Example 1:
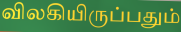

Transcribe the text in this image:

விலகியிருப்பதும்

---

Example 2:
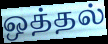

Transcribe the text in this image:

ஒத்தல்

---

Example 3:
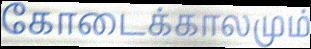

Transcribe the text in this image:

கோடைக்காலமும்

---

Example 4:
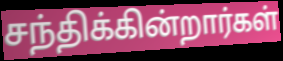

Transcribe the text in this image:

சந்திக்கின்றார்கள்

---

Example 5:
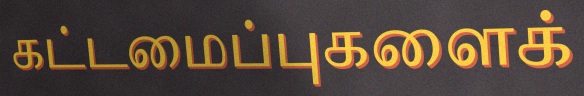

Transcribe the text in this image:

கட்டமைப்புகளைக்